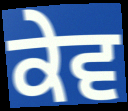
ਕੇਵ